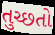
તુચ્છતો